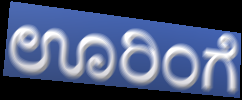
ಊರಿಂಗೆ